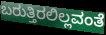
ಬರುತ್ತಿರಲಿಲ್ಲವಂತೆ